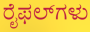
ರೈಫಲ್‌ಗಳು